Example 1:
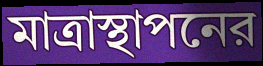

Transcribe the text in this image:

মাত্রাস্থাপনের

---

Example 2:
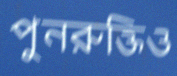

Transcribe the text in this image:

পুনরুক্তিও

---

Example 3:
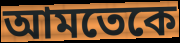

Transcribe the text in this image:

আমতেকে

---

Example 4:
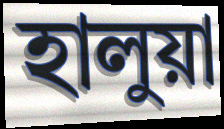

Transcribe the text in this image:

হালুয়া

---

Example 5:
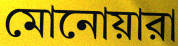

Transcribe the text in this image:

মোনোয়ারা